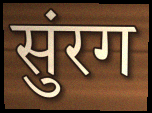
सुंरग